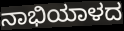
ನಾಭಿಯಾಳದ